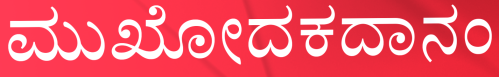
ಮುಖೋದಕದಾನಂ